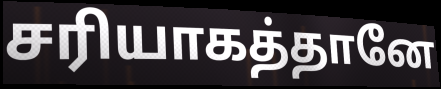
சரியாகத்தானே